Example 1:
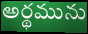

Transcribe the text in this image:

అర్థమును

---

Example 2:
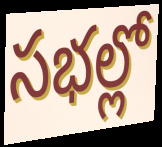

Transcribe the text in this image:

సభల్లో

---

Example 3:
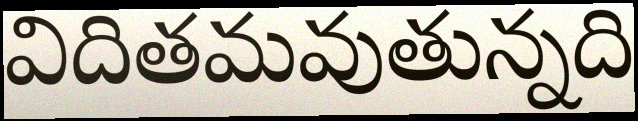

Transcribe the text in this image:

విదితమవుతున్నది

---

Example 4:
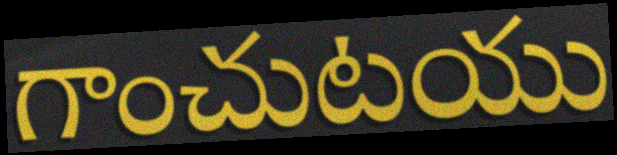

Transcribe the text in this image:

గాంచుటయు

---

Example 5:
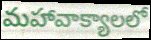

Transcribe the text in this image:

మహావాక్యాలలో